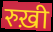
रुख़ी